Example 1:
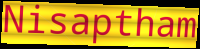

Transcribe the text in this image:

Nisaptham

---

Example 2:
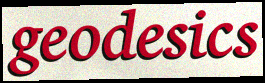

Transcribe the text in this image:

geodesics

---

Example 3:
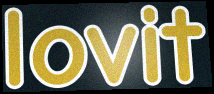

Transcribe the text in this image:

lovit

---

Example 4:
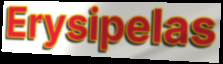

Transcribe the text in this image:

Erysipelas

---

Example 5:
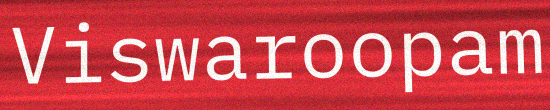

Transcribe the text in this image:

Viswaroopam